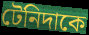
টেনিদাকে